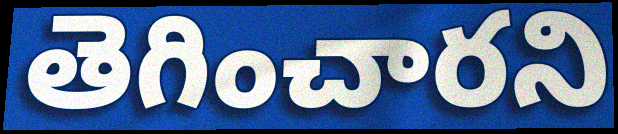
తెగించారని